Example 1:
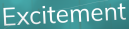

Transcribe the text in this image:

Excitement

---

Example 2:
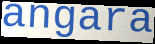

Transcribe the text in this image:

angara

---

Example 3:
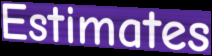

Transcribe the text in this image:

Estimates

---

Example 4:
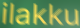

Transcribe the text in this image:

ilakku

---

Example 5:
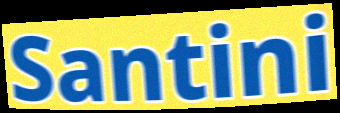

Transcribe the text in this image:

Santini